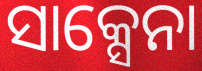
ସାକ୍ସେନା